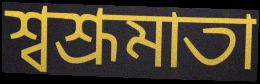
শ্বশ্রূমাতা